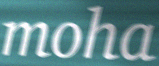
moha